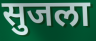
सुजला